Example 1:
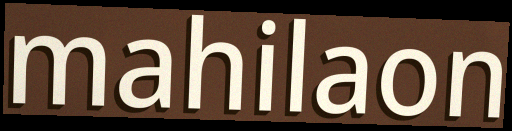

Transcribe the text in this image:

mahilaon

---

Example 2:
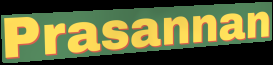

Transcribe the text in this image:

Prasannan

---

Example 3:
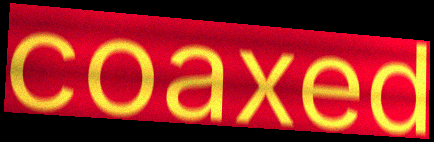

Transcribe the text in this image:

coaxed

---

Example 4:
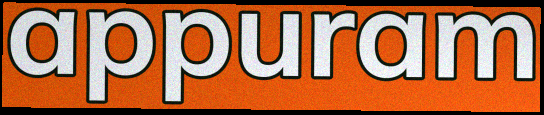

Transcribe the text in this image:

appuram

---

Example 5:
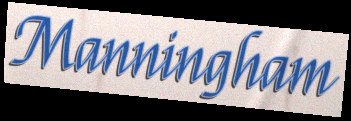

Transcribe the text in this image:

Manningham